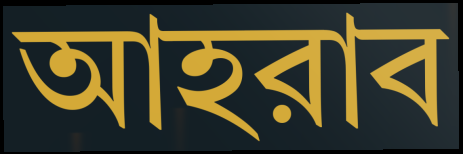
আহরাব